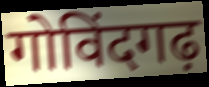
गोविंदगढ़